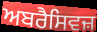
ਅਬਰੈਸਿਵਜ਼